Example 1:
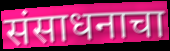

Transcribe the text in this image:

संसाधनाचा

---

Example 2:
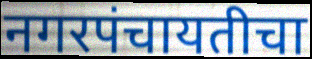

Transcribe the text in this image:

नगरपंचायतीचा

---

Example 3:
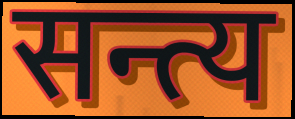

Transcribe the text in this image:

सन्त्य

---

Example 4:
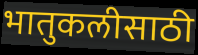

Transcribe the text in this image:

भातुकलीसाठी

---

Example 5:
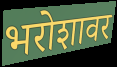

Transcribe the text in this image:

भरोशावर